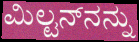
ಮಿಲ್ಟನ್‌ನನ್ನು